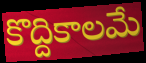
కొద్దికాలమే